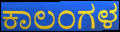
ಕಾಲಂಗಳ